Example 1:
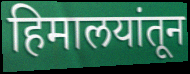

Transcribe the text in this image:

हिमालयांतून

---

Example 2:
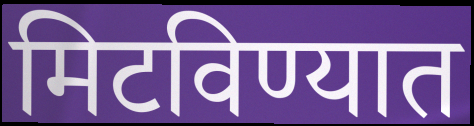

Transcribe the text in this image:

मिटविण्यात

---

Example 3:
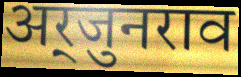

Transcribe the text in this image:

अर्जुनराव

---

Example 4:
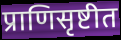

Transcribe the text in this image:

प्राणिसृष्टीत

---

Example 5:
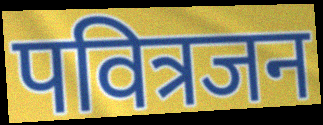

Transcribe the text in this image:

पवित्रजन